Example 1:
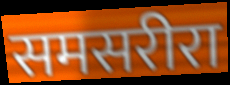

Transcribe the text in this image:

समसरीरा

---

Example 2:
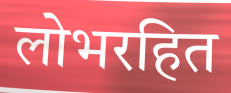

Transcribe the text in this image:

लोभरहित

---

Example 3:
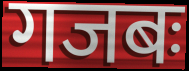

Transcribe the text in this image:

गजबः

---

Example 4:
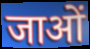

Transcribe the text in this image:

जाओं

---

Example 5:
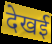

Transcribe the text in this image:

देखई